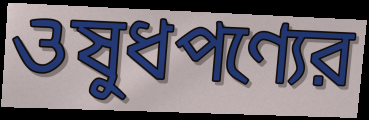
ওষুধপণ্যের